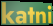
katni